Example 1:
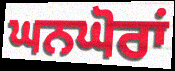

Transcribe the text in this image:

ਘਨਘੋਰਾਂ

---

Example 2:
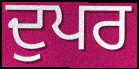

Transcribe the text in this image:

ਦੁਪਰ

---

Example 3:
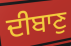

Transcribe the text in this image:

ਦੀਬਾਣੁ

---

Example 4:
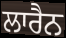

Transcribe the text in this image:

ਲਾਰੈਨ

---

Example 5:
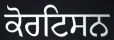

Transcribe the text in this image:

ਕੋਰਟਿਸਨ